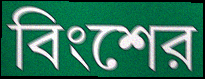
বিংশের